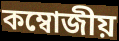
কম্বোজীয়